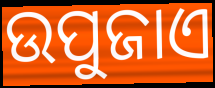
ଉପୁଜାଏ